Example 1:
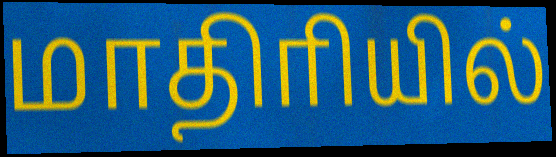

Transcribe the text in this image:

மாதிரியில்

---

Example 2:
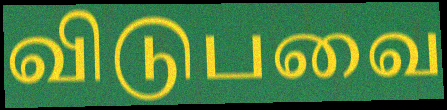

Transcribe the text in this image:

விடுபவை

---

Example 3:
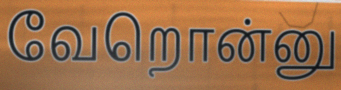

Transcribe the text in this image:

வேறொன்னு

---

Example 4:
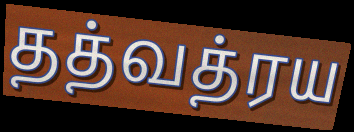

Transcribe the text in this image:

தத்வத்ரய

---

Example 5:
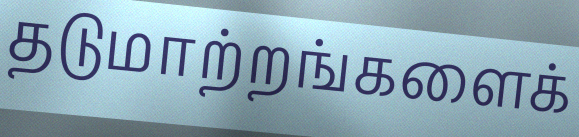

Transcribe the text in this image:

தடுமாற்றங்களைக்